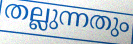
തല്ലുന്നതും